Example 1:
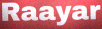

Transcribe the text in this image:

Raayar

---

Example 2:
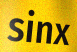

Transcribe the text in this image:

sinx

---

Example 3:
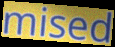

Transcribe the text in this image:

mised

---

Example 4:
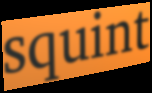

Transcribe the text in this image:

squint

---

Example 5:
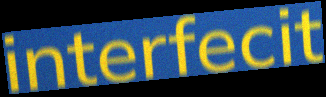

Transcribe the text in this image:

interfecit